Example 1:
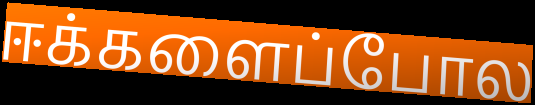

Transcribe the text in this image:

ஈக்களைப்போல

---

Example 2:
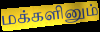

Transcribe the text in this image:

மக்களினும்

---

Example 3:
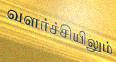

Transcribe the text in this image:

வளர்ச்சியிலும்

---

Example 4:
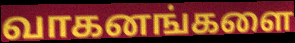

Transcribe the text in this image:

வாகனங்களை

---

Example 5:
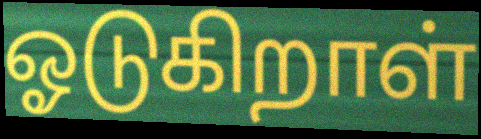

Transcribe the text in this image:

ஓடுகிறாள்